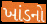
ખાંડનો